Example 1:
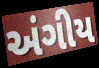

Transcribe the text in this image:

અંગીય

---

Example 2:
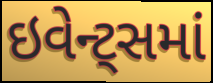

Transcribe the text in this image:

ઇવેન્ટ્સમાં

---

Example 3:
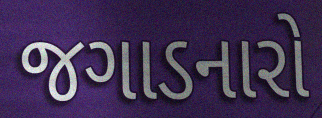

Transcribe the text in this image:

જગાડનારો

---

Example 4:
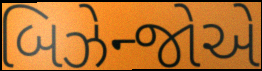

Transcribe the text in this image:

બિઝેન્જોએ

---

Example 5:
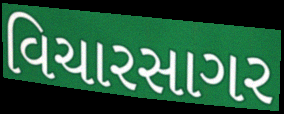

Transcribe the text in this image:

વિચારસાગર